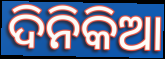
ଦିନିକିଆ